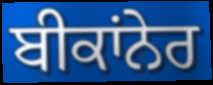
ਬੀਕਾਂਨੇਰ